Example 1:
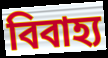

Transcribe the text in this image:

বিবাহ্য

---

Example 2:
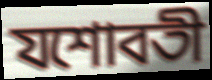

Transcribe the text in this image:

যশোবতী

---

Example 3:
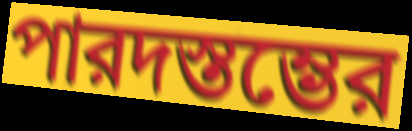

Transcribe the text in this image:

পারদস্তম্ভের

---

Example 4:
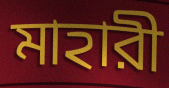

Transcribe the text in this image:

মাহারী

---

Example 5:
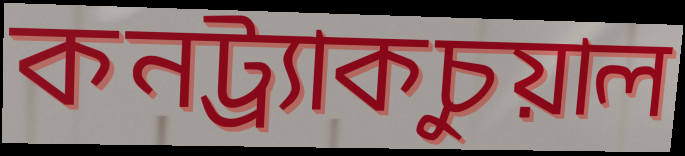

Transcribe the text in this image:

কনট্র্যাকচুয়াল